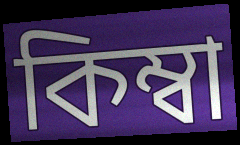
কিম্বা